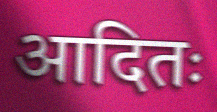
आदितः